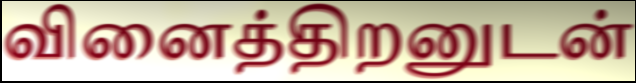
வினைத்திறனுடன்